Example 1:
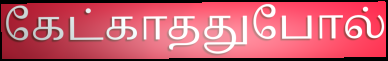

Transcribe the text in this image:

கேட்காததுபோல்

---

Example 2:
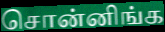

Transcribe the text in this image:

சொன்னிங்க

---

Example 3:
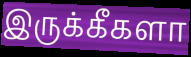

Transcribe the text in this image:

இருக்கீகளா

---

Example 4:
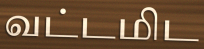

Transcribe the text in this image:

வட்டமிட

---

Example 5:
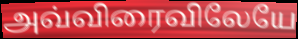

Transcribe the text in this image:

அவ்விரைவிலேயே